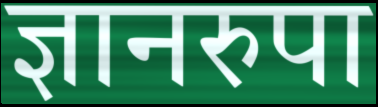
ज्ञानरुपा